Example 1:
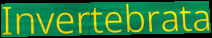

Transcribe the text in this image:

Invertebrata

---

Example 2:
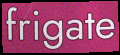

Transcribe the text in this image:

frigate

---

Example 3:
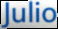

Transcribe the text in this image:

Julio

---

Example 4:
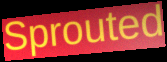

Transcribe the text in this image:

Sprouted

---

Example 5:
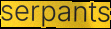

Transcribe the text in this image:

serpants